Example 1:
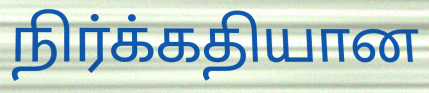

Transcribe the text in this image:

நிர்க்கதியான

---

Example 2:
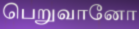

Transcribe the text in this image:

பெறுவானோ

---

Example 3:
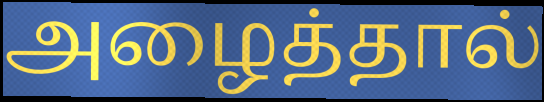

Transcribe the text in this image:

அழைத்தால்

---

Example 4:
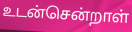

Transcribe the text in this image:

உடன்சென்றாள்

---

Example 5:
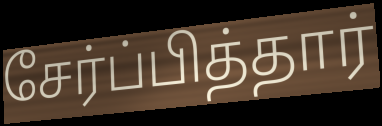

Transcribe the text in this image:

சேர்ப்பித்தார்